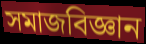
সমাজবিজ্ঞান